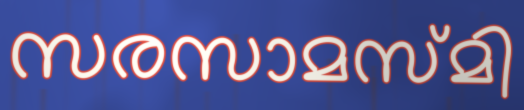
സരസാമസ്മി